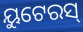
ୟୁଟେରସ୍